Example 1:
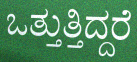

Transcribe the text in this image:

ಒತ್ತುತ್ತಿದ್ದರೆ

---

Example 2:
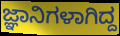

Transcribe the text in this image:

ಜ್ಞಾನಿಗಳಾಗಿದ್ದ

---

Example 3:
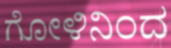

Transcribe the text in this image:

ಗೋಳಿನಿಂದ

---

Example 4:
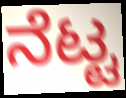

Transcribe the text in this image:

ನೆಟ್ಟ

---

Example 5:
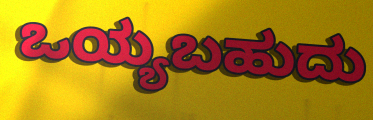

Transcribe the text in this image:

ಒಯ್ಯಬಹುದು